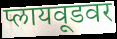
प्लायवूडवर